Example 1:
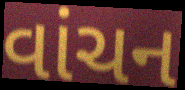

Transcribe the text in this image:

વાંચન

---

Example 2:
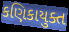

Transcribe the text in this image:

કણિકાયુક્ત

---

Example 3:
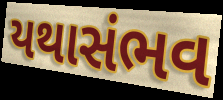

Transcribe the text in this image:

યથાસંભવ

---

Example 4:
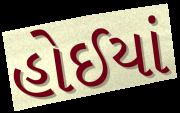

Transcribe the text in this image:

હોઈયાં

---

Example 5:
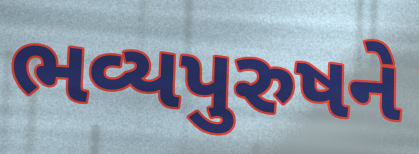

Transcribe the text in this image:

ભવ્યપુરુષને